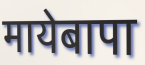
मायेबापा